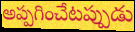
అప్పగించేటప్పుడు